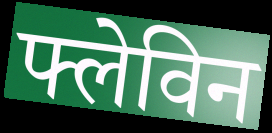
फ्लेविन